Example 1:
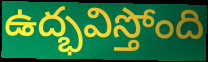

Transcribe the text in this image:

ఉద్భవిస్తోంది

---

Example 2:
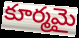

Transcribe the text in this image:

కూర్మమై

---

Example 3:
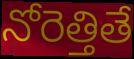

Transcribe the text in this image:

నోరెత్తితే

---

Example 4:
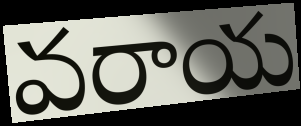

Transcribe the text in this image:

వరాయ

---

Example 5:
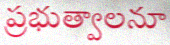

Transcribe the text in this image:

ప్రభుత్వాలనూ